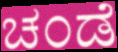
ಚಂಡೆ